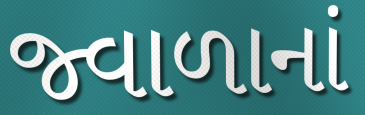
જ્વાળાનાં